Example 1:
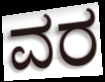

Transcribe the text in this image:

ವರ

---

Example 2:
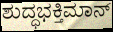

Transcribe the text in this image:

ಶುದ್ಧಭಕ್ತಿಮಾನ್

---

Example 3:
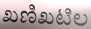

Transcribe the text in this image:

ಖಣಿಖಟಿಲ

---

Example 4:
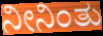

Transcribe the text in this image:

ನೀನಿಂತು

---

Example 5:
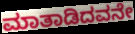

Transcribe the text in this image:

ಮಾತಾಡಿದವನೇ